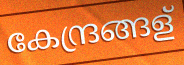
കേന്ദ്രങ്ങള്